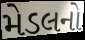
મેડલનો